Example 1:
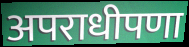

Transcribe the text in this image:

अपराधीपणा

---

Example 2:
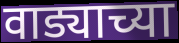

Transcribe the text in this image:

वाड्याच्या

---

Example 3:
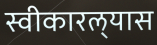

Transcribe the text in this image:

स्वीकारल्यास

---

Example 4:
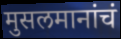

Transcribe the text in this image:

मुसलमानांचं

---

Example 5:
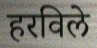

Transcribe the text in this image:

हरविले